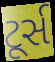
ટૂર્સ